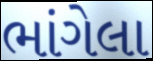
ભાંગેલા